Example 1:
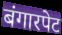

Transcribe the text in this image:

बंगारपेट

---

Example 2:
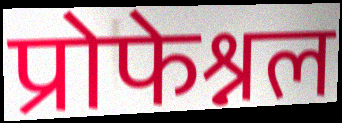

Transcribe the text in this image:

प्रोफेश्नल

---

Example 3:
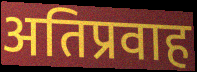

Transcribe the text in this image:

अतिप्रवाह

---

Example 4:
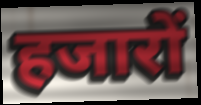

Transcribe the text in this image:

हजारों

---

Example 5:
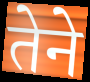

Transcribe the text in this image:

तेने